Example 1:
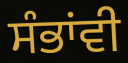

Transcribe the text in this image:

ਸੰਭਾਂਵੀ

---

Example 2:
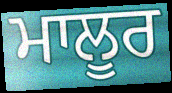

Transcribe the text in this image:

ਮਾਲੂਰ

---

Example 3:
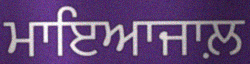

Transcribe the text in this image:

ਮਾਇਆਜਾਲ਼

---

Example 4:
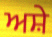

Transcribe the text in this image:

ਅਸ਼ੇ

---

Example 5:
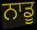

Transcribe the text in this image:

ਨਾਡੂ